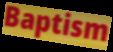
Baptism